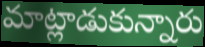
మాట్లాడుకున్నారు